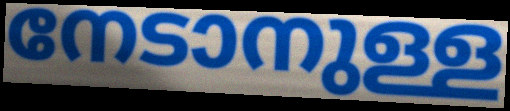
നേടാനുള്ള